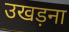
उखड़ना